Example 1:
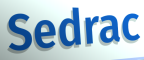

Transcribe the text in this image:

Sedrac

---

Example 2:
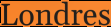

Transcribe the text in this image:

Londres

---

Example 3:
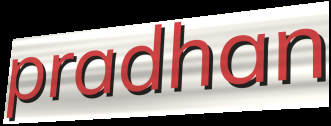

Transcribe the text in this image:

pradhan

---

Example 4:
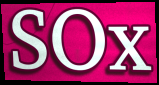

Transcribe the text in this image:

SOx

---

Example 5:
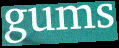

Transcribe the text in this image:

gums